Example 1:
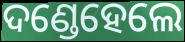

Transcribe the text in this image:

ଦଣ୍ଡେହେଲେ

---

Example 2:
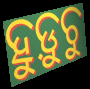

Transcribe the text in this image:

ହୁଡ଼ୁଚୁ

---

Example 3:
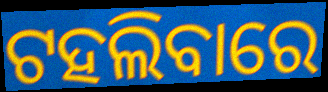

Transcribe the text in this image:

ଟହଲିବାରେ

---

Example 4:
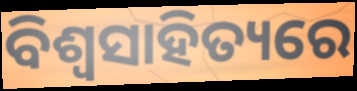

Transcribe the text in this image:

ବିଶ୍ବସାହିତ୍ୟରେ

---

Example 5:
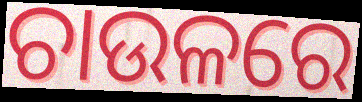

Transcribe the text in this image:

ଚାଉଳରେ